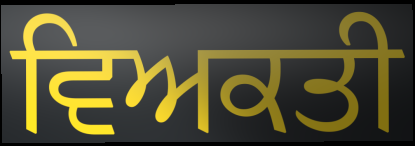
ਵਿਅਕਤੀ